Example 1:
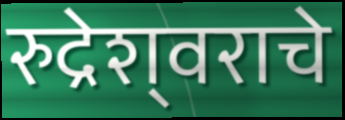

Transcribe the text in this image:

रुद्रेश्वराचे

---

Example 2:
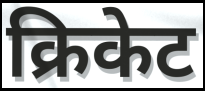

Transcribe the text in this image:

क्रिकेट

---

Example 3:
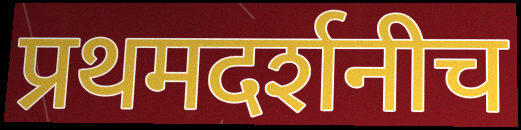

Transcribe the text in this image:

प्रथमदर्शनीच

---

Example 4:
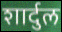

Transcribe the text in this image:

शार्दुल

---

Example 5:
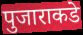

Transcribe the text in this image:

पुजाराकडे